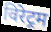
विरेट्रम